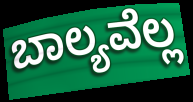
ಬಾಲ್ಯವೆಲ್ಲ